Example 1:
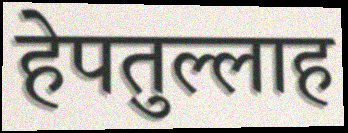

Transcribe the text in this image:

हेपतुल्लाह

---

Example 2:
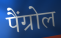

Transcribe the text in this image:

पैंग्रोल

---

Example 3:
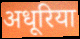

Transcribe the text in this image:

अधूरिया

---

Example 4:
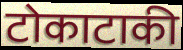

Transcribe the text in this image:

टोकाटाकी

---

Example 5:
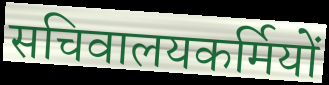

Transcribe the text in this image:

सचिवालयकर्मियों